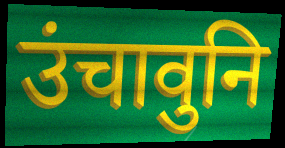
उंचावुनि